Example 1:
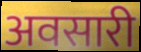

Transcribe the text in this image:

अवसारी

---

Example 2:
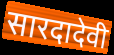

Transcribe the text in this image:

सारदादेवी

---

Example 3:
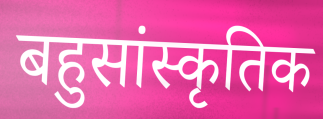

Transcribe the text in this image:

बहुसांस्कृतिक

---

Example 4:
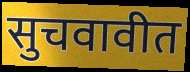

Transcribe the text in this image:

सुचवावीत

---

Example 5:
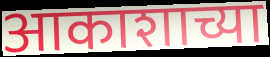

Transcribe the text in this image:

आकाशाच्या